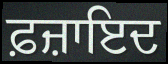
ਫ਼ਜ਼ਾਇਦ